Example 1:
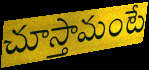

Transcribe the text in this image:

చూస్తామంటే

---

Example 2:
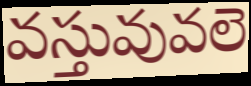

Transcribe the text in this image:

వస్తువువలె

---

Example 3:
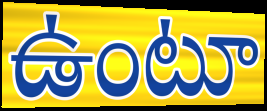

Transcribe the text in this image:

ఉంటూ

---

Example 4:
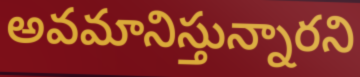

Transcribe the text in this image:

అవమానిస్తున్నారని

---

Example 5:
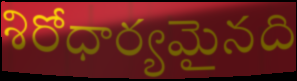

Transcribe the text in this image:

శిరోధార్యమైనది